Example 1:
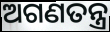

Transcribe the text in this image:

ଅଗଣତନ୍ତ୍ର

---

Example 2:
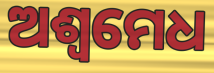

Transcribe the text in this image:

ଅଶ୍ବମେଧ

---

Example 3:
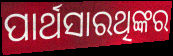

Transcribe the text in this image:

ପାର୍ଥସାରଥିଙ୍କର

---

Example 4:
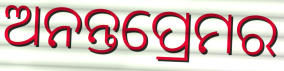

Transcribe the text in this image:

ଅନନ୍ତପ୍ରେମର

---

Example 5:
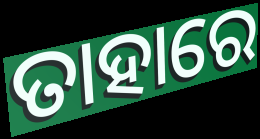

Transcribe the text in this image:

ତାହାରେ